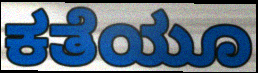
ಕತೆಯೂ